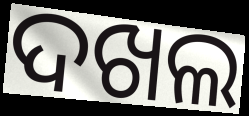
ଦଖଲ